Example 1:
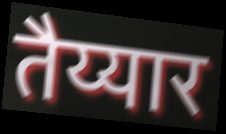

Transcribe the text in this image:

तैय्यार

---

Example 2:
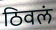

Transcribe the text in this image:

ठिवलं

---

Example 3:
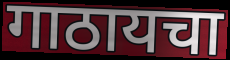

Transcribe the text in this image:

गाठायचा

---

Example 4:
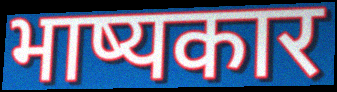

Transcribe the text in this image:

भाष्यकार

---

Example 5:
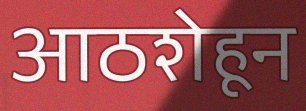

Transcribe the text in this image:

आठशेहून